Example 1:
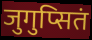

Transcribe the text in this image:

जुगुप्सितं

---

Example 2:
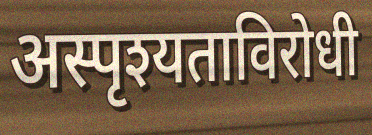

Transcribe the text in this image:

अस्पृश्यताविरोधी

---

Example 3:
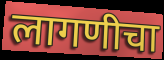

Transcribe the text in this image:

लागणीचा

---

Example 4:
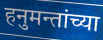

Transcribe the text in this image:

हनुमन्तांच्या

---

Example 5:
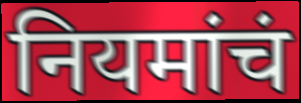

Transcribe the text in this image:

नियमांचं